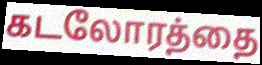
கடலோரத்தை